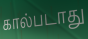
கால்படாது